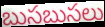
బుసబుసలు